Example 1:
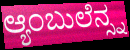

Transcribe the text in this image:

ಆ್ಯಂಬುಲೆನ್ಸ್ನ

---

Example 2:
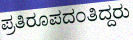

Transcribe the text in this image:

ಪ್ರತಿರೂಪದಂತಿದ್ದರು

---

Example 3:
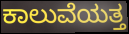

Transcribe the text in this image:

ಕಾಲುವೆಯತ್ತ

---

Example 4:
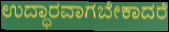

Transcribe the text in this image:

ಉದ್ಧಾರವಾಗಬೇಕಾದರೆ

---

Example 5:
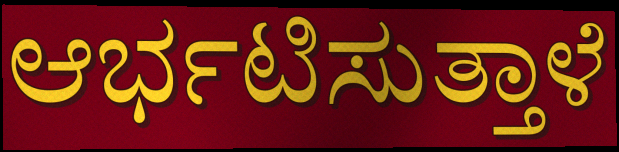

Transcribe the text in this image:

ಆರ್ಭಟಿಸುತ್ತಾಳೆ